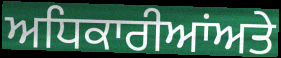
ਅਧਿਕਾਰੀਆਂਅਤੇ